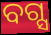
ବଗ୍ସ